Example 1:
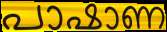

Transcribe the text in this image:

പാഷാണ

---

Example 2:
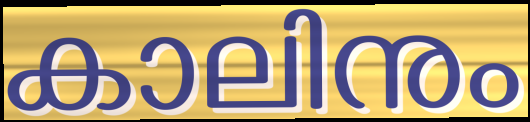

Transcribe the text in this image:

കാലിനും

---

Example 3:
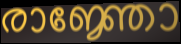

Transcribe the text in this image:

രാജ്ഞോ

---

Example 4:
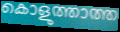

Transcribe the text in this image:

കൊളുത്താത്ത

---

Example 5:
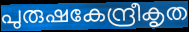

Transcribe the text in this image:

പുരുഷകേന്ദ്രീകൃത